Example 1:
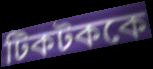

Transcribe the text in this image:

টিকটককে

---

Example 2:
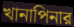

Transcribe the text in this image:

খানাপিনার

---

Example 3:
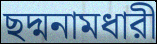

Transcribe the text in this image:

ছদ্মনামধারী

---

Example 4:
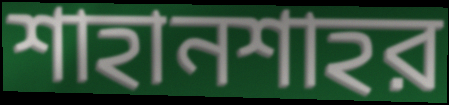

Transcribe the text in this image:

শাহানশাহর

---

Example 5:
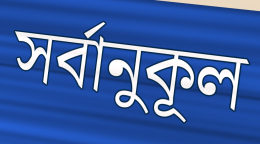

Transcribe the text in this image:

সর্বানুকূল